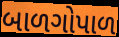
બાળગોપાળ